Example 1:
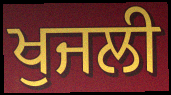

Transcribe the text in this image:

ਖੁਜਲੀ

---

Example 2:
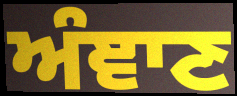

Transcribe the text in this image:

ਅੰਞਾਣ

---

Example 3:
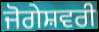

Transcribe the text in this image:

ਜੋਗੇਸ਼ਵਰੀ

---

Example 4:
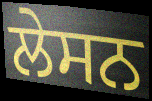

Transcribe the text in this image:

ਲੇਸਨ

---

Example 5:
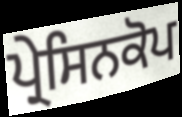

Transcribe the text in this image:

ਪ੍ਰੇਸਿਨਕੋਪ